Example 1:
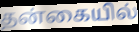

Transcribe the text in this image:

தன்கையில்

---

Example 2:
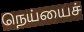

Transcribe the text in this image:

நெய்யைச்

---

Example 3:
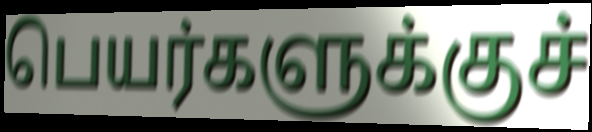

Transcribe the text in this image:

பெயர்களுக்குச்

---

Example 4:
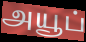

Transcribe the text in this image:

அயூப்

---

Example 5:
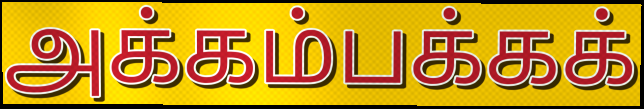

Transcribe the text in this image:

அக்கம்பக்கக்